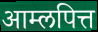
आम्लपित्त